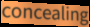
concealing